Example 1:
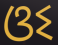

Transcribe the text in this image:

ଓଽ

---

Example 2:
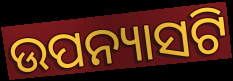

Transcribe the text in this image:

ଉପନ୍ୟାସଟି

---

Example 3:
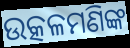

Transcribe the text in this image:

ଉତ୍କଳମଣିଙ୍କ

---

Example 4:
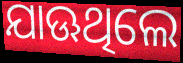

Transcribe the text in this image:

ଯାଊଥିଲେ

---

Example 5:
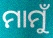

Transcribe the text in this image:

ମାମୁଁ